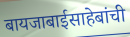
बायजाबाईसाहेबांची